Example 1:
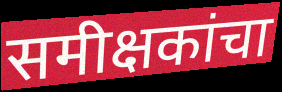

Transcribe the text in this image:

समीक्षकांचा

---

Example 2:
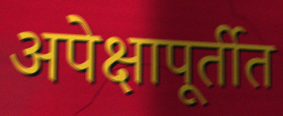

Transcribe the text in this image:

अपेक्षापूर्तीत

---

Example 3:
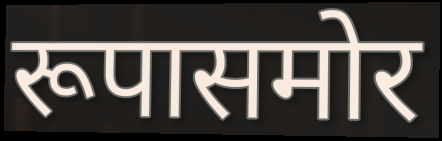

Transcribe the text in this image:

रूपासमोर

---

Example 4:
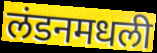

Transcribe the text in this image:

लंडनमधली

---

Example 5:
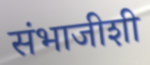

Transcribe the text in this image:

संभाजीशी